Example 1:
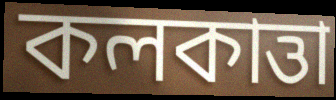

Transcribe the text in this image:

কলকাত্তা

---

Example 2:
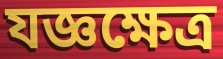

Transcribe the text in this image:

যজ্ঞক্ষেত্র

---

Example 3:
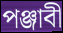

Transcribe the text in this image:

পঞ্জাবী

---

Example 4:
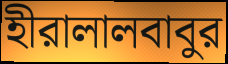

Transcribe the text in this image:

হীরালালবাবুর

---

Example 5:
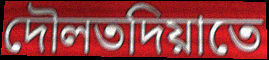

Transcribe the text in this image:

দৌলতদিয়াতে